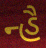
ન્હૈ